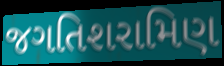
જગતિશરામિણ